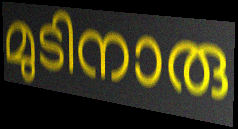
മുടിനാരു